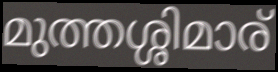
മുത്തശ്ശിമാര്